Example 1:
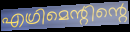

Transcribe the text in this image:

എഗ്രിമെന്റിന്റെ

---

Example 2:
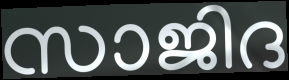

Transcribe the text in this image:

സാജിദ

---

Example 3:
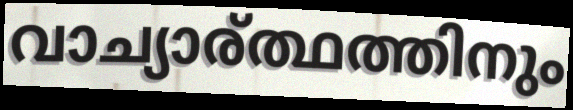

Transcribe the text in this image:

വാച്യാര്ത്ഥത്തിനും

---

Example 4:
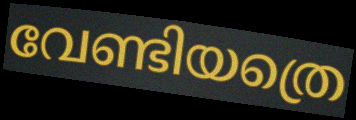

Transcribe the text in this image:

വേണ്ടിയത്രെ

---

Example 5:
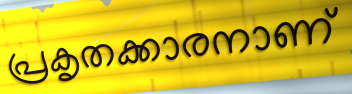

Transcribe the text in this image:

പ്രകൃതക്കാരനാണ്